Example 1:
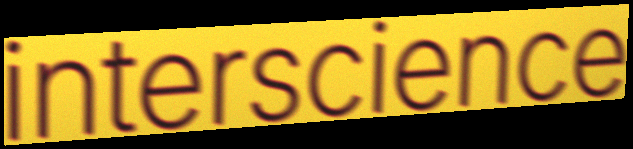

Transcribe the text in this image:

interscience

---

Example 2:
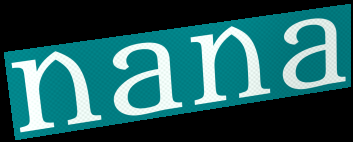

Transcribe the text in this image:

nana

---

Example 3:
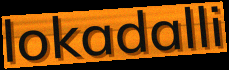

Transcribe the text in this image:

lokadalli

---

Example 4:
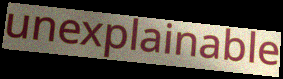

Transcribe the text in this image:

unexplainable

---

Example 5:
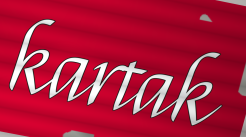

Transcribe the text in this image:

kartak